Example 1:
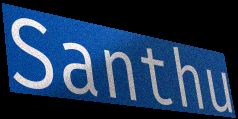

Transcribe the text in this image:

Santhu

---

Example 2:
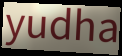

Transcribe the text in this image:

yudha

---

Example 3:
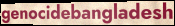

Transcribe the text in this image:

genocidebangladesh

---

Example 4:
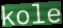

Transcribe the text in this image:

kole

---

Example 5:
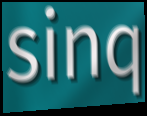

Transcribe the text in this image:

sinq